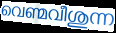
വെണ്മവീശുന്ന